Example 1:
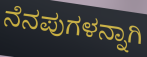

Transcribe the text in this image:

ನೆನಪುಗಳನ್ನಾಗಿ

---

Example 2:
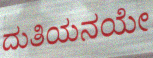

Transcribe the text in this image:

ದುತಿಯನಯೇ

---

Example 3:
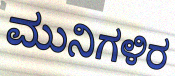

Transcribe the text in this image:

ಮುನಿಗಳಿರ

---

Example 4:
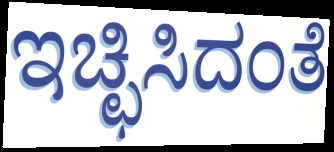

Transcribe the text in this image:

ಇಚ್ಛಿಸಿದಂತೆ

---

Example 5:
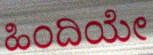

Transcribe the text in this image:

ಹಿಂದಿಯೇ